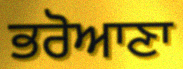
ਭਰੋਆਣਾ